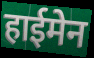
हाईमेन